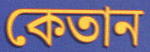
কেতান